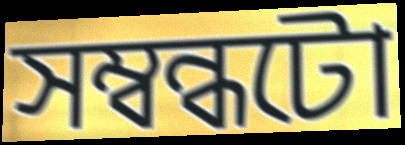
সম্বন্ধটো